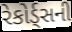
રેકોર્ડ્સની